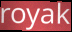
royak